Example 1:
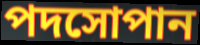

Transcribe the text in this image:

পদসোপান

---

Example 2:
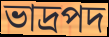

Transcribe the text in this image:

ভাদ্রপদ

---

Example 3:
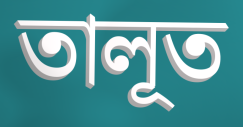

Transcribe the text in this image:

তালূত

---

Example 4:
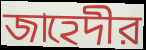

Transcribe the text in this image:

জাহেদীর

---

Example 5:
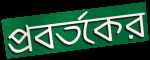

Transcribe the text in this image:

প্রবর্তকের